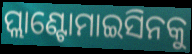
ପ୍ଲାଣ୍ଟୋମାଇସିନକୁ